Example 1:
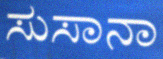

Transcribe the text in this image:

ಸುಸಾನಾ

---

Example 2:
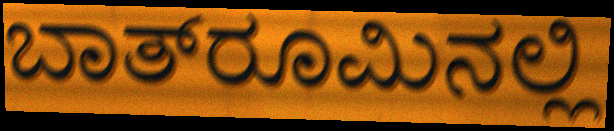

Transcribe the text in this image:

ಬಾತ್‌ರೂಮಿನಲ್ಲಿ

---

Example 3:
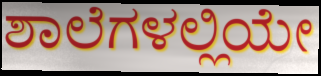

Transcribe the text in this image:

ಶಾಲೆಗಳಲ್ಲಿಯೇ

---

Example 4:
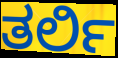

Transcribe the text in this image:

ತರ್ಲಿ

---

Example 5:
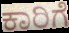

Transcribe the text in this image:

ಕಾರಿಗೆ